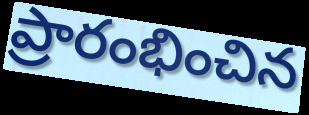
ప్రారంభించిన